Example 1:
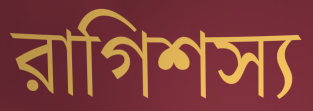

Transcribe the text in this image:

রাগিশস্য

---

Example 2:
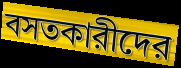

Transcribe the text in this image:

বসতকারীদের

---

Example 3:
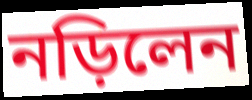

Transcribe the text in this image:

নড়িলেন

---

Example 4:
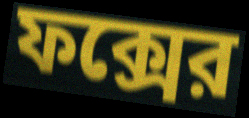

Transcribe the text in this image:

ফক্সের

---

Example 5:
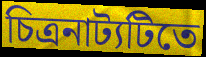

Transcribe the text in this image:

চিত্রনাট্যটিতে